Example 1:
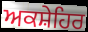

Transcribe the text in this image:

ਅਕਸ਼ੇਹਿਰ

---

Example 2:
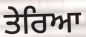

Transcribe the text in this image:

ਤੇਰਿਆ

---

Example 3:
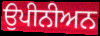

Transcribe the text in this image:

ਉਪੀਨੀਅਨ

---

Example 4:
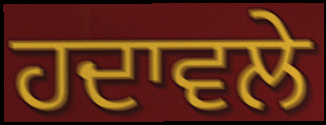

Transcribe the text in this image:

ਹਦਾਵਲੇ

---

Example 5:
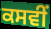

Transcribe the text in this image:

ਕਸਵੀਂ